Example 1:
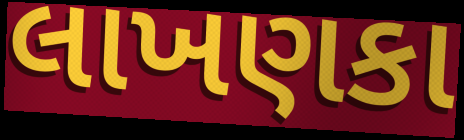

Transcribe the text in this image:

લાખણકા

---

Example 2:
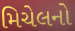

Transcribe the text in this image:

મિચેલનો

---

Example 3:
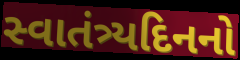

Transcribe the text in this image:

સ્વાતંત્ર્યદિનનો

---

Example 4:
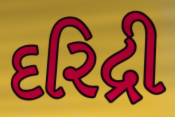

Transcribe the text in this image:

દરિદ્રી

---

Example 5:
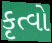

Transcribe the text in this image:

કૃત્વો